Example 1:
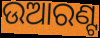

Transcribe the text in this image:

ଉଆରଣ୍ଟ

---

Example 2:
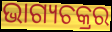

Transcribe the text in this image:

ଭାଗ୍ୟଚକ୍ରର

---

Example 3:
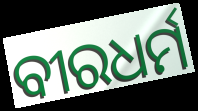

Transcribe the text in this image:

ବୀରଧର୍ମ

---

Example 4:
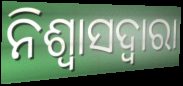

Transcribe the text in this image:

ନିଶ୍ୱାସଦ୍ୱାରା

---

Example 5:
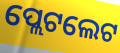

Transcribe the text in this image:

ପ୍ଲେଟଲେଟ